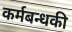
कर्मबन्धकी